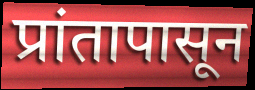
प्रांतापासून